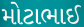
મોટાભાઈ